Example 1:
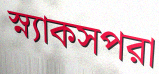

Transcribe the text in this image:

স্ন্যাকসপরা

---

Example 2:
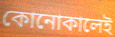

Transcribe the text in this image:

কোনোকালেই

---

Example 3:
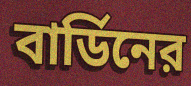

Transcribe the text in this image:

বার্ডিনের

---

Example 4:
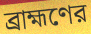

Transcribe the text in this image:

ব্রাহ্মণের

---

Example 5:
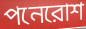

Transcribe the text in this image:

পনেরোশ